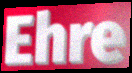
Ehre